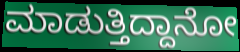
ಮಾಡುತ್ತಿದ್ದಾನೋ